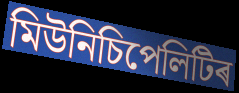
মিউনিচিপেলিটিৰ